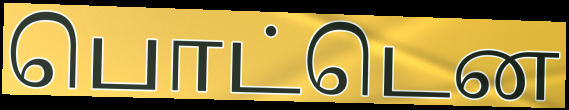
பொட்டென